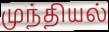
முந்தியல்